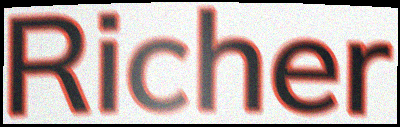
Richer